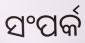
ସଂପର୍କ